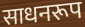
साधनरूप